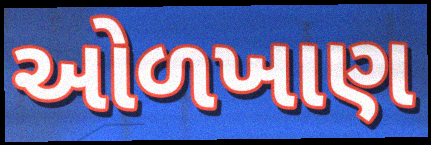
ઓળખાણ